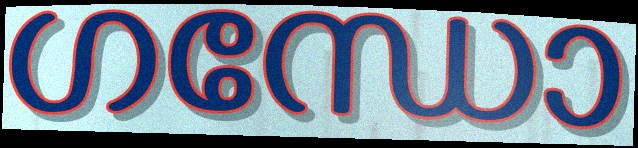
ഗന്ധോ